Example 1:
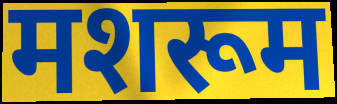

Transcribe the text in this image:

मशरूम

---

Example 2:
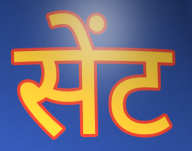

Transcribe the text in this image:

सेंट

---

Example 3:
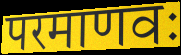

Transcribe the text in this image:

परमाणवः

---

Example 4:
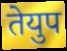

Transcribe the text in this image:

तेयुप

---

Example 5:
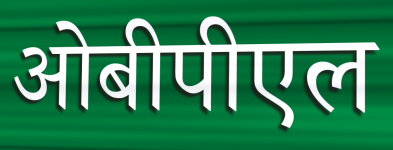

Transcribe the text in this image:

ओबीपीएल